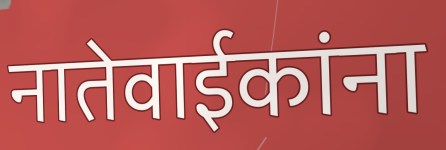
नातेवाईकांना